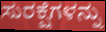
ಸುರಕ್ಷೆಗಳನ್ನು